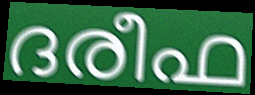
ദരീഫ